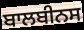
ਬਾਲਬੀਨਸ